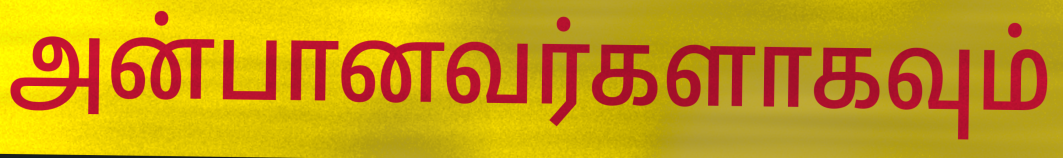
அன்பானவர்களாகவும்